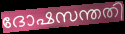
ദോഷസന്തതി